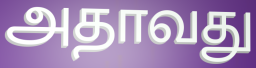
அதாவது